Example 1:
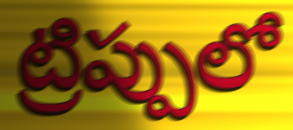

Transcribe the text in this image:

ట్రిప్పులో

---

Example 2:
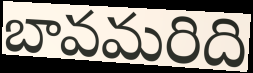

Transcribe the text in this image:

బావమరిది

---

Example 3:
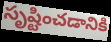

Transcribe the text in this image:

సృష్టించడానికి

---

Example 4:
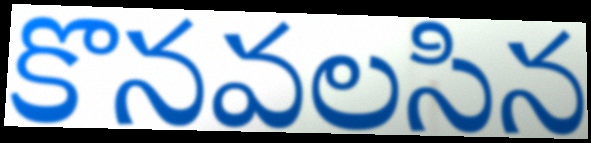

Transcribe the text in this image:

కొనవలసిన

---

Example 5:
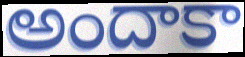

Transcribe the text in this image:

అందాకా